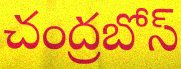
చంద్రబోస్